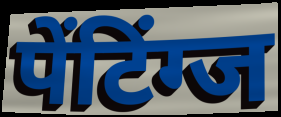
पेंटिंग्ज